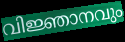
വിജ്ഞാനവും